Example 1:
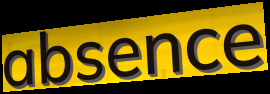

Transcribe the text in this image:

absence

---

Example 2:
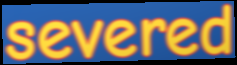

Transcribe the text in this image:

severed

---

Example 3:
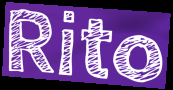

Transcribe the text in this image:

Rito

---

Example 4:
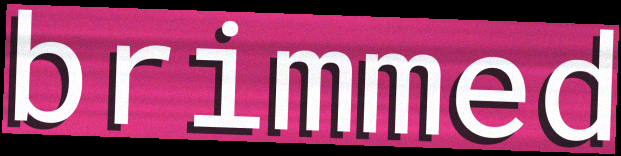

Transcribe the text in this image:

brimmed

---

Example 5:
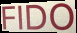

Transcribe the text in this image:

FIDO